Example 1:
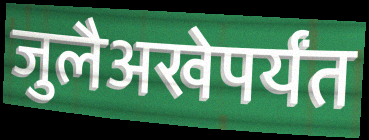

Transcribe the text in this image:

जुलैअखेपर्यंत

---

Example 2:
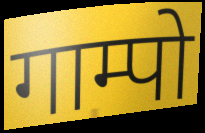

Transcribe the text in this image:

गाम्पो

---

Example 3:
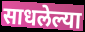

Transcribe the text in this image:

साधलेल्या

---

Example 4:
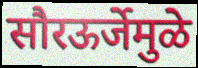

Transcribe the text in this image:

सौरऊर्जेमुळे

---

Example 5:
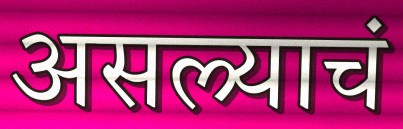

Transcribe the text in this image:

असल्याचं